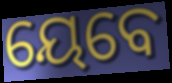
ୟେବେ